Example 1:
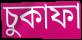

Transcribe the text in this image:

চুকাফা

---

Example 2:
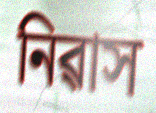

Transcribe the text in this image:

নিৱাস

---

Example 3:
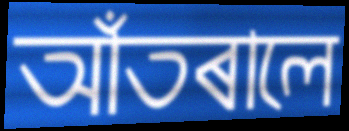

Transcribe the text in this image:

আঁতৰালে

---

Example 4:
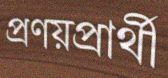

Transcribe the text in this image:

প্ৰণয়প্ৰাৰ্থী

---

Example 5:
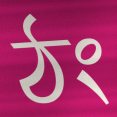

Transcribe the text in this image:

ঠং